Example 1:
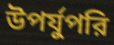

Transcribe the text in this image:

উপর্যুপরি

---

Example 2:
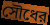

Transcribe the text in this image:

সৌধের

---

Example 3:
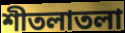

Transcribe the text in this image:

শীতলাতলা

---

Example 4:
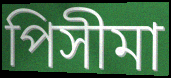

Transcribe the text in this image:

পিসীমা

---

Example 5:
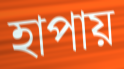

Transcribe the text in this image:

হাপায়